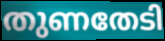
തുണതേടി